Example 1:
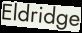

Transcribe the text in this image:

Eldridge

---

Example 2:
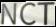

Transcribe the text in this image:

NCT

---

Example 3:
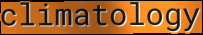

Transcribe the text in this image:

climatology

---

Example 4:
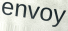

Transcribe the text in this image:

envoy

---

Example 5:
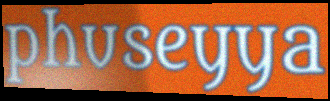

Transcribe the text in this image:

phuseyya